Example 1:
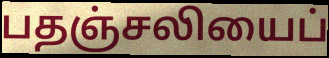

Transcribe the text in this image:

பதஞ்சலியைப்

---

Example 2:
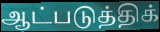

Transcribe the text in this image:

ஆட்படுத்திக்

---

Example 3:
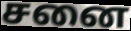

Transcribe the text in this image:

சனை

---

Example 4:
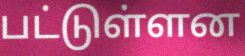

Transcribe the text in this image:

பட்டுள்ளன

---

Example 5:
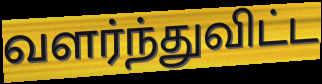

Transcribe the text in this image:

வளர்ந்துவிட்ட